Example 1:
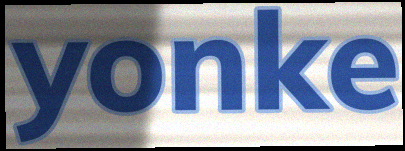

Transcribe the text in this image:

yonke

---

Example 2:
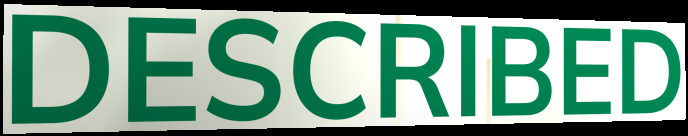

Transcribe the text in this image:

DESCRIBED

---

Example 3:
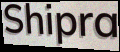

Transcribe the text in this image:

Shipra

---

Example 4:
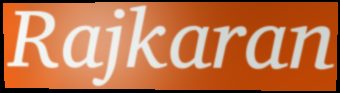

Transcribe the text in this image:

Rajkaran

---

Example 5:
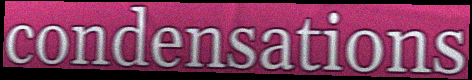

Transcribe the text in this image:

condensations